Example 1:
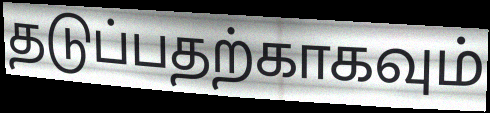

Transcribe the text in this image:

தடுப்பதற்காகவும்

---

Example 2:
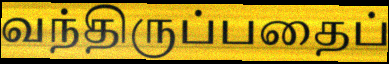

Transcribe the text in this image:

வந்திருப்பதைப்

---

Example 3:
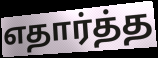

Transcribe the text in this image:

எதார்த்த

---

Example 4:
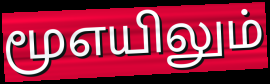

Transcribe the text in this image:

மூஎயிலும்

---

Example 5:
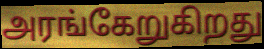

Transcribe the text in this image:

அரங்கேறுகிறது